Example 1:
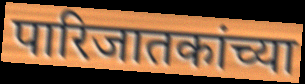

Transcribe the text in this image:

पारिजातकांच्या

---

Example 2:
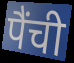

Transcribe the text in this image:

पैंची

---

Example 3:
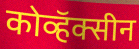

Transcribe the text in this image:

कोव्हॅक्सीन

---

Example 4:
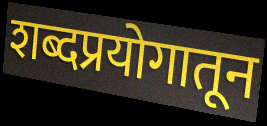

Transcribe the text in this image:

शब्दप्रयोगातून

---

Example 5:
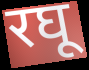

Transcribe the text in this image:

रघू